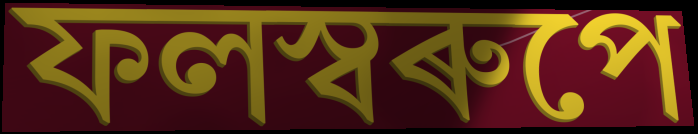
ফলস্বৰুপে